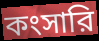
কংসারি